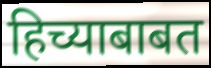
हिच्याबाबत